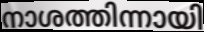
നാശത്തിന്നായി